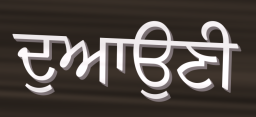
ਦੁਆਉਣੀ